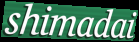
shimadai